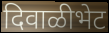
दिवाळीभेट